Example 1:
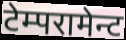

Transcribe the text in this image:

टेम्परामेन्ट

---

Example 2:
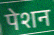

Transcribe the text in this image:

पेशन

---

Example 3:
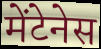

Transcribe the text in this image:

मेंटेनेस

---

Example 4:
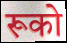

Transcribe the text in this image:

रूको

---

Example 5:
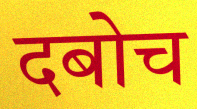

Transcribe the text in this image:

दबोच